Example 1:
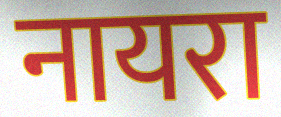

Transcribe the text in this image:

नायरा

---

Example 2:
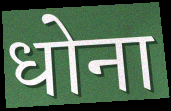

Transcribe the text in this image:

धोना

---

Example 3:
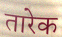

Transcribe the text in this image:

तारेक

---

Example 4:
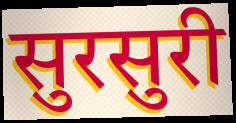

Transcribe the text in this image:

सुरसुरी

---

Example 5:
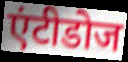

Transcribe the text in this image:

एंटीडोज